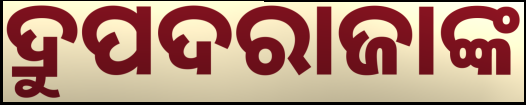
ଦ୍ରୁପଦରାଜାଙ୍କ